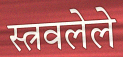
स्त्रवलेले